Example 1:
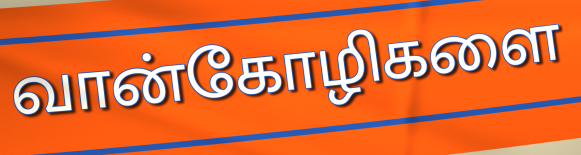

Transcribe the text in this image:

வான்கோழிகளை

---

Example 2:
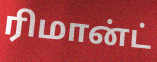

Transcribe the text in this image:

ரிமான்ட்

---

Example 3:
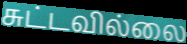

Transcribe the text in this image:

சுட்டவில்லை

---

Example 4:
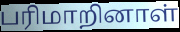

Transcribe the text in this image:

பரிமாறினாள்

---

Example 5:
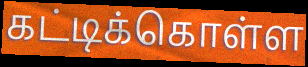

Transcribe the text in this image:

கட்டிக்கொள்ள